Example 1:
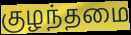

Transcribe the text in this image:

குழந்தமை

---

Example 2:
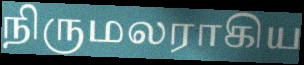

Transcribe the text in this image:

நிருமலராகிய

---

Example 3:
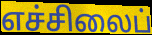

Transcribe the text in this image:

எச்சிலைப்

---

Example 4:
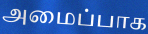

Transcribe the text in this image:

அமைப்பாக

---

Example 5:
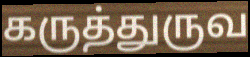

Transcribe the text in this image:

கருத்துருவ